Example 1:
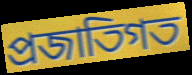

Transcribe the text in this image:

প্রজাতিগত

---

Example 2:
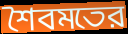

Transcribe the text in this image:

শৈবমতের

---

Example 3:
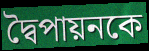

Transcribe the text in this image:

দ্বৈপায়নকে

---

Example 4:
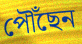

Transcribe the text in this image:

পৌঁছেন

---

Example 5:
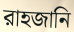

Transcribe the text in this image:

রাহজানি